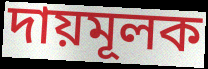
দায়মূলক